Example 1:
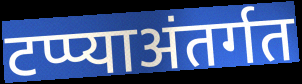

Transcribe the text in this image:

टप्प्याअंतर्गत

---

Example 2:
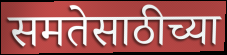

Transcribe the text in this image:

समतेसाठीच्या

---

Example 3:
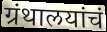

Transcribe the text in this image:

ग्रंथालयांचं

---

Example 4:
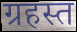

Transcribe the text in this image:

ग्रहस्त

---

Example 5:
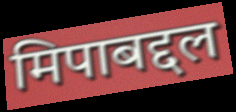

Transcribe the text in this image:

मिपाबद्दल